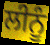
ਲੀਨੂੰ